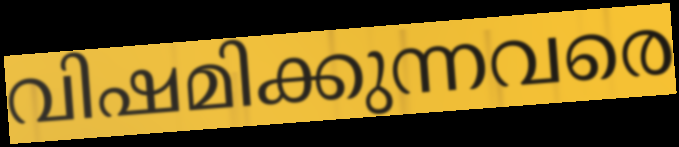
വിഷമിക്കുന്നവരെ